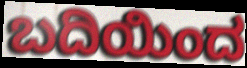
ಬದಿಯಿಂದ